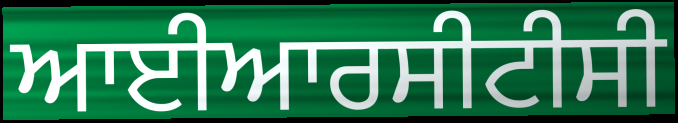
ਆਈਆਰਸੀਟੀਸੀ